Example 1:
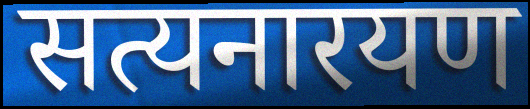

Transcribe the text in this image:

सत्यनारयण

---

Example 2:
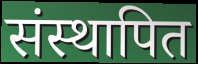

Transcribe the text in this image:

संस्थापित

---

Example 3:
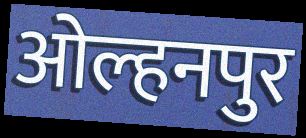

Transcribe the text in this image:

ओल्हनपुर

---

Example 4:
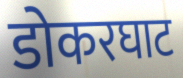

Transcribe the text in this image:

डोकरघाट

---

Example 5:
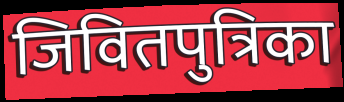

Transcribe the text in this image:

जिवितपुत्रिका